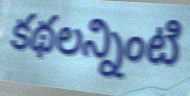
కథలన్నింటి